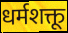
धर्मशक्तू